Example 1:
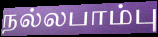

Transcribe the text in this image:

நல்லபாம்பு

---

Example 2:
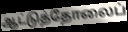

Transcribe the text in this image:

ஆட்டுத்தோலைப்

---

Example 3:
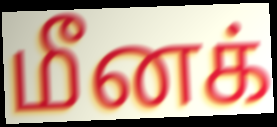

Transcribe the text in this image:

மீனக்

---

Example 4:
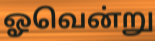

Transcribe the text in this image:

ஓவென்று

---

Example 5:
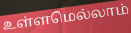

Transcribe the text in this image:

உள்ளமெல்லாம்